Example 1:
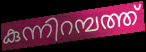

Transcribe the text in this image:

കുന്നിറമ്പത്ത്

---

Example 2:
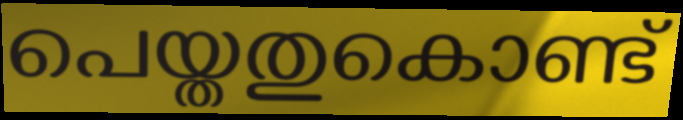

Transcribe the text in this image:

പെയ്തതുകൊണ്ട്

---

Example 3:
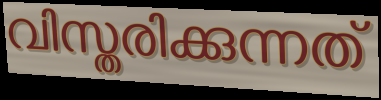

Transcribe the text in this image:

വിസ്തരിക്കുന്നത്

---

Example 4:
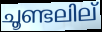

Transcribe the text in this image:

ചൂണ്ടലില്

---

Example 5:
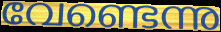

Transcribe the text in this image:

വേണ്ടെന്നു